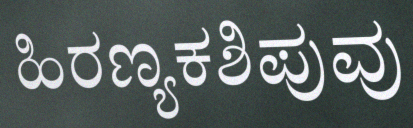
ಹಿರಣ್ಯಕಶಿಪುವು